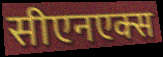
सीएनएक्स